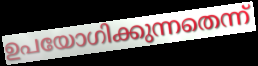
ഉപയോഗിക്കുന്നതെന്ന്